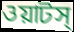
ওয়াটস্